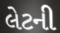
લેટની